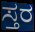
ಸ್ತರ